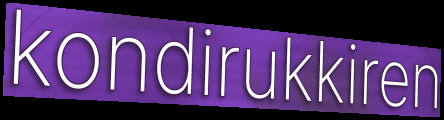
kondirukkiren